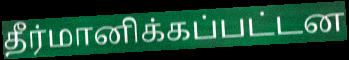
தீர்மானிக்கப்பட்டன